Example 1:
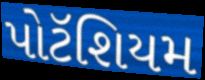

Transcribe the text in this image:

પોટૅશિયમ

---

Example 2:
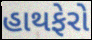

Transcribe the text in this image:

હાથફેરો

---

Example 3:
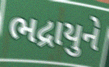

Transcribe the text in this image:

ભદ્રાયુને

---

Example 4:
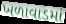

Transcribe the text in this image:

ખળાવાડમાં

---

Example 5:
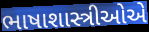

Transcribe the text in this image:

ભાષાશાસ્ત્રીઓએ